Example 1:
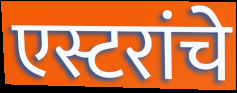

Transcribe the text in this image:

एस्टरांचे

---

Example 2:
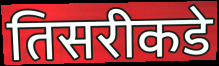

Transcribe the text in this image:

तिसरीकडे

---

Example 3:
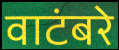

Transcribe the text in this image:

वाटंबरे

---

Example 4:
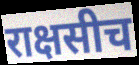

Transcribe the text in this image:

राक्षसीच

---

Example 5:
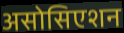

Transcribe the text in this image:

असोसिएशन